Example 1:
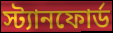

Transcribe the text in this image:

স্ট্যানফোর্ড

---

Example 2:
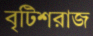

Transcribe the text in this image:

বৃটিশরাজ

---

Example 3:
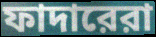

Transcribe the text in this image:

ফাদারেরা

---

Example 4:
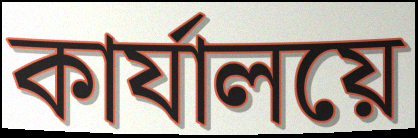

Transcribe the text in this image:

কার্যালয়ে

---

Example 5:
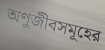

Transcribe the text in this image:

অণুজীবসমূহের